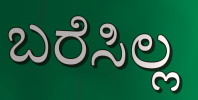
ಬರೆಸಿಲ್ಲ